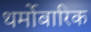
थर्मोबारिक